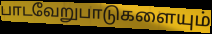
பாடவேறுபாடுகளையும்